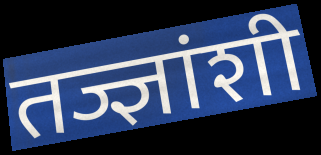
तज्ज्ञांशी